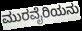
ಮುರವೈರಿಯನು